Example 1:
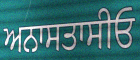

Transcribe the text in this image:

ਅਨਾਸਤਾਸੀਓ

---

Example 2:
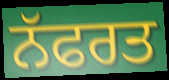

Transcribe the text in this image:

ਨੱਫਰਤ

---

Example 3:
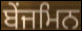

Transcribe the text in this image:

ਬੇਂਜਮਿਨ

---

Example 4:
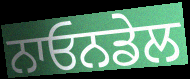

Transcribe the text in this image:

ਨਾਓਨਡੇਲ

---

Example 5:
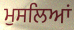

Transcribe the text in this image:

ਮੁਸਲਿਆਂ